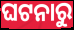
ଘଟନାରୁ